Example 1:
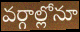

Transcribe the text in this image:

వర్గాల్లోనూ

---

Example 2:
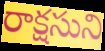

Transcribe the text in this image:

రాక్షసుని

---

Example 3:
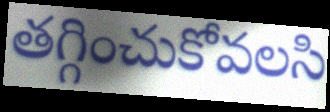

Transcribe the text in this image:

తగ్గించుకోవలసి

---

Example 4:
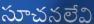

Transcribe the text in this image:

సూచనలేవి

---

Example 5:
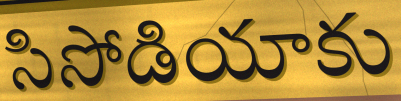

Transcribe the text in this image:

సిసోడియాకు